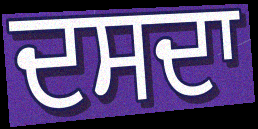
ਦਸਦਾ